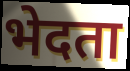
भेदता